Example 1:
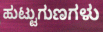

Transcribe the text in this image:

ಹುಟ್ಟುಗುಣಗಳು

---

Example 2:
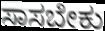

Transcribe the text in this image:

ಸಾಸಬೇಕು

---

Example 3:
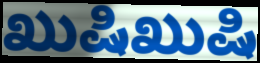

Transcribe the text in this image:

ಖುಷಿಖುಷಿ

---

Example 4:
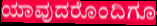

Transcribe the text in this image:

ಯಾವುದರೊಂದಿಗೂ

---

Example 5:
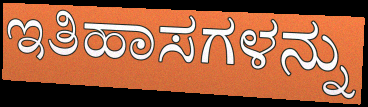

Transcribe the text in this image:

ಇತಿಹಾಸಗಳನ್ನು